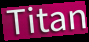
Titan